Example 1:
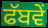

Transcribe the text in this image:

ਫੱਬਵੇਂ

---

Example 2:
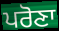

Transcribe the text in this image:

ਪਰੋਣਾ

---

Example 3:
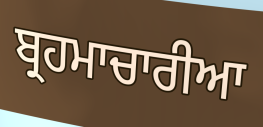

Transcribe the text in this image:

ਬ੍ਰਹਮਾਚਾਰੀਆ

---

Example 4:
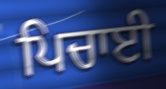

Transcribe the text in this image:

ਪਿਚਾਈ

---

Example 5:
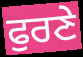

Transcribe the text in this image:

ਫੁਰਣੇ